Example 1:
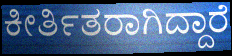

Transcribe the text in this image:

ಕೀರ್ತಿತರಾಗಿದ್ದಾರೆ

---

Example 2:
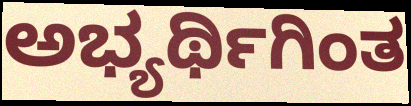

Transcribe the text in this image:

ಅಭ್ಯರ್ಥಿಗಿಂತ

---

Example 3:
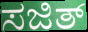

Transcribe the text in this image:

ಸಜಿತ್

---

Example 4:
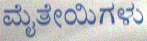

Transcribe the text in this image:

ಮೈತೇಯಿಗಳು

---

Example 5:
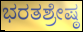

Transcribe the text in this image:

ಭರತಶ್ರೇಷ್ಠ